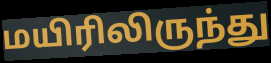
மயிரிலிருந்து